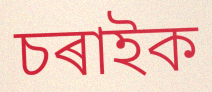
চৰাইক